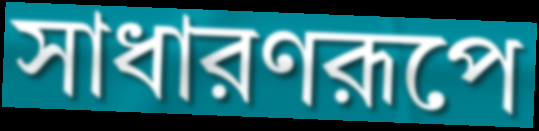
সাধারণরূপে